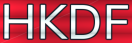
HKDF